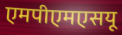
एमपीएमएसयू